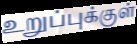
உறுப்புக்குள்